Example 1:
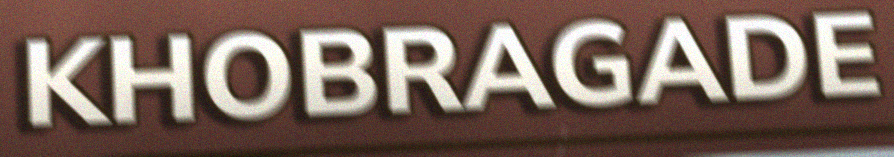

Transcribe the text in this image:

KHOBRAGADE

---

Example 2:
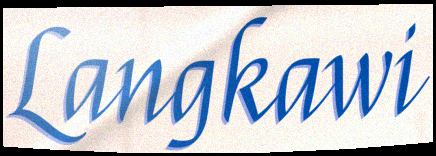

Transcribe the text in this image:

Langkawi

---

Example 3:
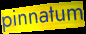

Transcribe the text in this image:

pinnatum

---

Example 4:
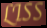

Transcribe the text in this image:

LISS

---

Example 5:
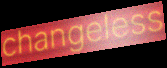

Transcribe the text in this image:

changeless